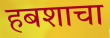
हबशाचा